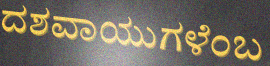
ದಶವಾಯುಗಳೆಂಬ